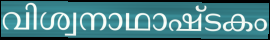
വിശ്വനാഥാഷ്ടകം